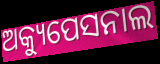
ଅକ୍ୟୁପେସନାଲ